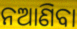
ନଆଣିବା